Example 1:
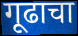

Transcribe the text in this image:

गूढाचा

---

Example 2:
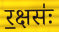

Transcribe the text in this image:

र॒क्षसः॑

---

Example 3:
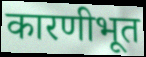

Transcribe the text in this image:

कारणीभूत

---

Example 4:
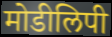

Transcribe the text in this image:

मोडीलिपी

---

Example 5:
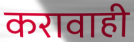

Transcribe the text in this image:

करावाही